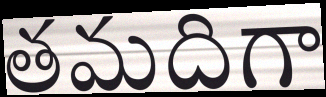
తమదిగా